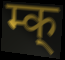
म्क्